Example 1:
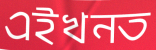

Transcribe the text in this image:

এইখনত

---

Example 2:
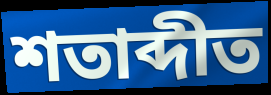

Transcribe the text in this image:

শতাব্দীত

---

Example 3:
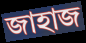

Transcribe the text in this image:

জাহাজ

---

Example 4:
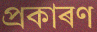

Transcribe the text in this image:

প্ৰকাৰণ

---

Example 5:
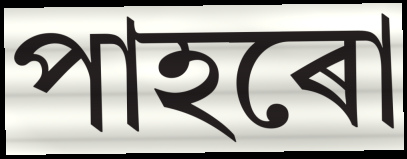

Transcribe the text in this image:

পাহৰো